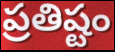
ప్రతిష్టం